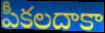
పీకలదాకా